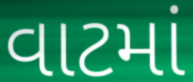
વાટમાં